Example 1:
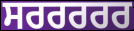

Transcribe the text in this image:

ਸਰਰਰਰਰ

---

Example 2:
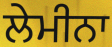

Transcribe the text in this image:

ਲੇਮੀਨਾ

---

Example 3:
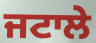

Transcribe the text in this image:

ਜਟਾਲੇ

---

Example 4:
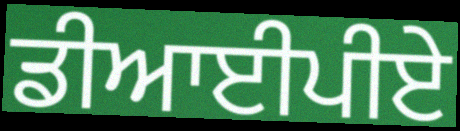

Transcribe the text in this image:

ਡੀਆਈਪੀਏ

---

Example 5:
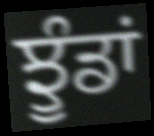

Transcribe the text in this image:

ਝੂੰਡਾਂ